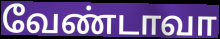
வேண்டாவா